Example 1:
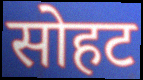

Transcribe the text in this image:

सोहट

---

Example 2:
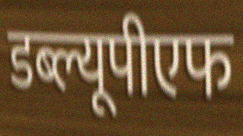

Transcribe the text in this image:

डब्ल्यूपीएफ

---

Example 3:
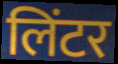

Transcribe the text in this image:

लिंटर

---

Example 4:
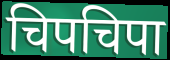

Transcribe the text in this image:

चिपचिपा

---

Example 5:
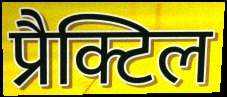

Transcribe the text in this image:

प्रैक्टिल